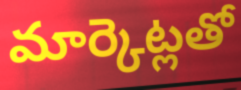
మార్కెట్లతో